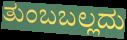
ತುಂಬಬಲ್ಲದು